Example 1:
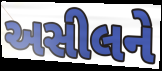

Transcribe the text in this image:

અસીલને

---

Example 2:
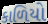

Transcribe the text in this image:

કાળિયો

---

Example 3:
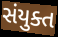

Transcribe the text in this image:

સંયુક્ત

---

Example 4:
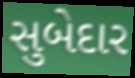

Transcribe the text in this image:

સુબેદાર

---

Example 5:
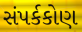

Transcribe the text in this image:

સંપર્કકોણ